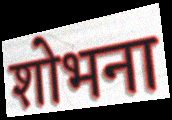
शोभना